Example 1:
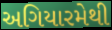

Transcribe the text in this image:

અગિયારમેથી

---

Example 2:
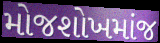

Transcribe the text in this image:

મોજશોખમાંજ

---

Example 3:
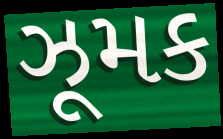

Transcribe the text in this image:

ઝૂમક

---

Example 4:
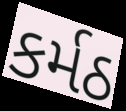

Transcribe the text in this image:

કર્મઠ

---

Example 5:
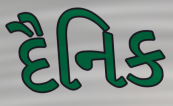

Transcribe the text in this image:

દૈનિક